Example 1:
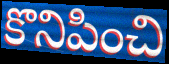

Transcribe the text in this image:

కొనిపించి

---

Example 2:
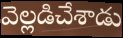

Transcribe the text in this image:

వెల్లడిచేశాడు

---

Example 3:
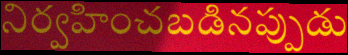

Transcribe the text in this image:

నిర్వహించబడినప్పుడు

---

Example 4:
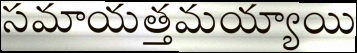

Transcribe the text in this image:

సమాయత్తమయ్యాయి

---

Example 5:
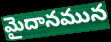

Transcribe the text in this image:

మైదానమున